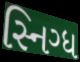
સ્નિગ્ધ